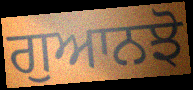
ਗੁਆਨਝੋ